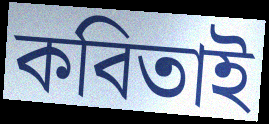
কবিতাই